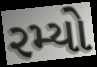
રમ્યો